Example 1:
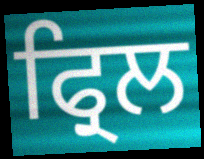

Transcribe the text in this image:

ਫ੍ਰਿਲ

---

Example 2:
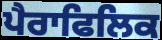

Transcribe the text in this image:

ਪੈਰਾਫਿਲਿਕ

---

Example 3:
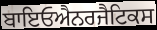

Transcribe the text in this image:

ਬਾਇਓਐਨਰਜੈਟਿਕਸ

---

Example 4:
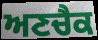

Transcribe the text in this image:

ਅਣਚੈਕ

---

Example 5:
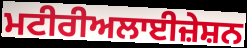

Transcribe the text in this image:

ਮਟੀਰੀਅਲਾਈਜ਼ੇਸ਼ਨ